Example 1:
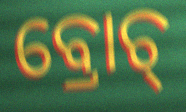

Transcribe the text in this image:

ବ୍ରୋଚ୍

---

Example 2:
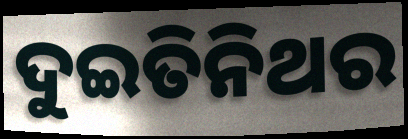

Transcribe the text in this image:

ଦୁଇତିନିଥର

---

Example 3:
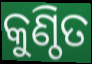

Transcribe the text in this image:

କୁଣ୍ଠିତ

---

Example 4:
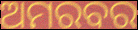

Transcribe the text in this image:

ଅମରବର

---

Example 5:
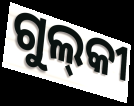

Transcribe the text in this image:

ଗୁଲ୍‌କୀ